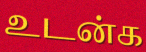
உடன்க